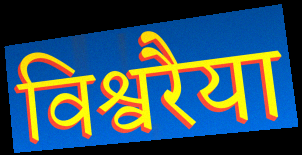
विश्वरैया